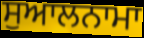
ਸੁਆਲਨਾਮਾ